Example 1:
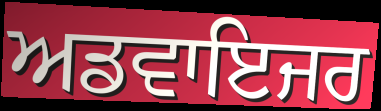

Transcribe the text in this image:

ਅਡਵਾਇਜਰ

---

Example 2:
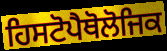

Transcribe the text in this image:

ਹਿਸਟੋਪੈਥੋਲੋਜਿਕ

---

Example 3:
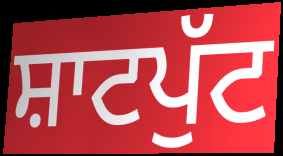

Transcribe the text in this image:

ਸ਼ਾਟਪੁੱਟ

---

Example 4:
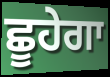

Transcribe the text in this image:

ਛੂਹੇਗਾ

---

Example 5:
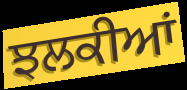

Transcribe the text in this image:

ਝਲਕੀਆਂ